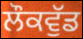
ਲੌਕਵੁੱਡ